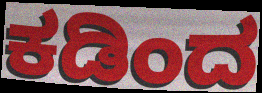
ಕಡಿಂದ